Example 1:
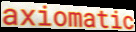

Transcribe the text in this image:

axiomatic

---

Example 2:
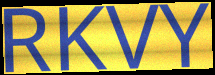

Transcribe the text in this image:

RKVY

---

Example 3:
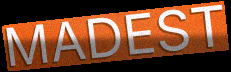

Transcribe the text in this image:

MADEST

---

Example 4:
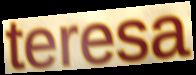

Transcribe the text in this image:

teresa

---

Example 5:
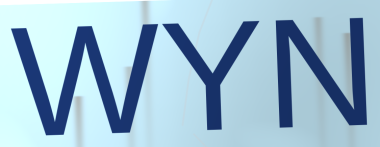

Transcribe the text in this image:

WYN